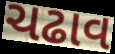
ચઢાવ